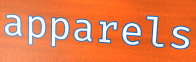
apparels